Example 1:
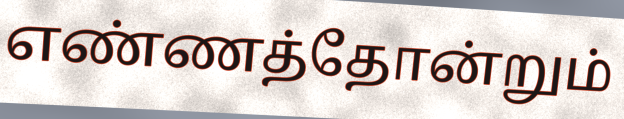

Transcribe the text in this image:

எண்ணத்தோன்றும்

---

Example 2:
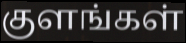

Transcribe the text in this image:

குளங்கள்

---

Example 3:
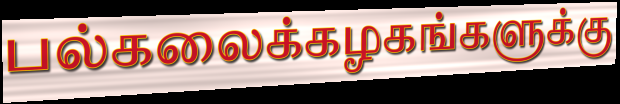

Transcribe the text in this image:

பல்கலைக்கழகங்களுக்கு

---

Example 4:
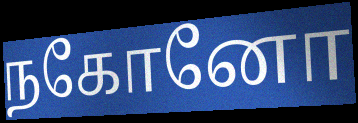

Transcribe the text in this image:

நகோனோ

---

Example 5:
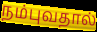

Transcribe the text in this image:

நம்புவதால்